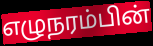
எழுநரம்பின்